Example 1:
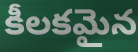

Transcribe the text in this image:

కీలకమైన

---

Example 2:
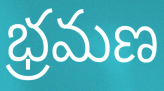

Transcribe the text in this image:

భ్రమణ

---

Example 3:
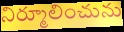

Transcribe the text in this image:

నిర్మూలించును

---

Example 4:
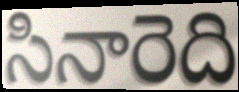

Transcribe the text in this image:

సినారెది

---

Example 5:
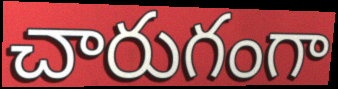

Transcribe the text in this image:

చారుగంగా